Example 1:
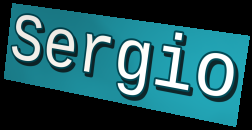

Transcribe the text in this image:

Sergio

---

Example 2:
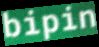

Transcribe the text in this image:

bipin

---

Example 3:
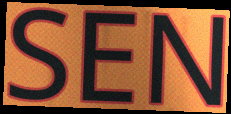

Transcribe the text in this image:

SEN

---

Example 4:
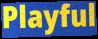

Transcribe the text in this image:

Playful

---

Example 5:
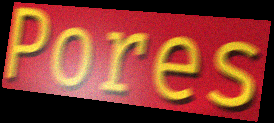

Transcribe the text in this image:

Pores